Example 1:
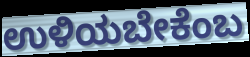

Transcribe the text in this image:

ಉಳಿಯಬೇಕೆಂಬ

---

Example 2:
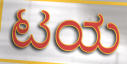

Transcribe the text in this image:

ಟಯ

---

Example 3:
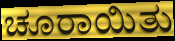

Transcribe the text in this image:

ಚೂರಾಯಿತು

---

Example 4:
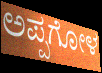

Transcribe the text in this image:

ಅಪ್ಪಗೋಳ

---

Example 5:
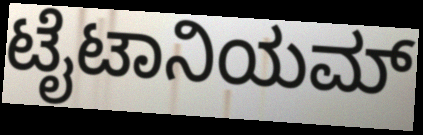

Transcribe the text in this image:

ಟೈಟಾನಿಯಮ್